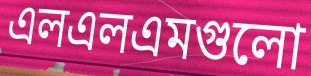
এলএলএমগুলো